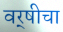
वर्षीचा